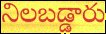
నిలబడ్డారు